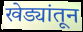
खेड्यांतून